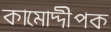
কামোদ্দীপক